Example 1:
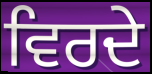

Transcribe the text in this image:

ਵਿਰਦੇ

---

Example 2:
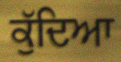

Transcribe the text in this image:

ਕੁੱਦਿਆ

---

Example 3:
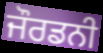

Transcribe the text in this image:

ਜੌਰਡਨੀ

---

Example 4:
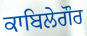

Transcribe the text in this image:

ਕਾਬਿਲੇਗੌਰ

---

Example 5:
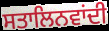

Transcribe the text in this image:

ਸਤਾਲਿਨਵਾਂਦੀ